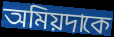
অমিয়দাকে